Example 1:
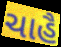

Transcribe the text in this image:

ચાહૈ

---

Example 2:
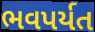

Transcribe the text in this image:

ભવપર્યત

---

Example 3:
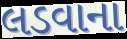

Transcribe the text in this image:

લડવાના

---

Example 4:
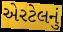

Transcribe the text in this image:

એરટેલનું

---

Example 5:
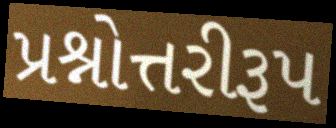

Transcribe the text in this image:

પ્રશ્નોત્તરીરૂપ